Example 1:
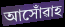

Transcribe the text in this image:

আসোঁৱাহ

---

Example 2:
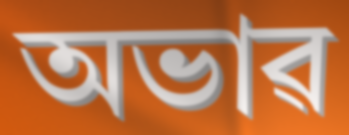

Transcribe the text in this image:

অভাৱ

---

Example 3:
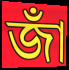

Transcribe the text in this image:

জাঁ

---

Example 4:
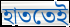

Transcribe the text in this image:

হাততেই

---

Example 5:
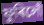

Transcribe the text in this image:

ফুৰিলোঁ